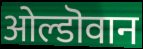
ओल्डॊवान